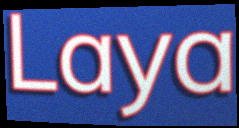
Laya